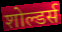
शोल्डर्स